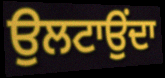
ਉਲਟਾਉਂਦਾ